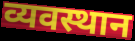
व्यवस्थान